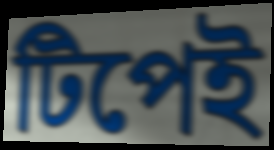
টিপেই